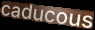
caducous